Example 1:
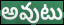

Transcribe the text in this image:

అవుటు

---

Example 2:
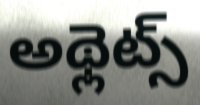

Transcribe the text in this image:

అథ్లెట్స్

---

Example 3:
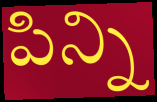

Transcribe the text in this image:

పిన్ని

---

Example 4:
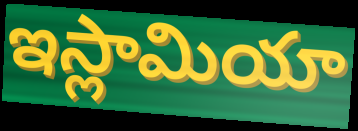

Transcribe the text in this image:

ఇస్లామియా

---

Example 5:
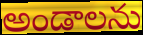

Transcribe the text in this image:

అండాలను